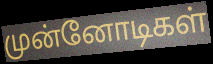
முன்னோடிகள்